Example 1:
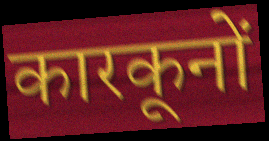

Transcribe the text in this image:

कारकूनों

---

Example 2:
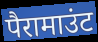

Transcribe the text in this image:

पैरामाउंट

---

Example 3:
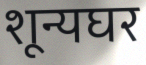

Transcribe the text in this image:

शून्यघर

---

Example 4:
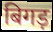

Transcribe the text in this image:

बिगड़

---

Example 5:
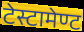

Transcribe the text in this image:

टेस्टामेण्ट